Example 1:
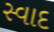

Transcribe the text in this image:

સ્વાદ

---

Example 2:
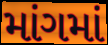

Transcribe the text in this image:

માંગમાં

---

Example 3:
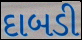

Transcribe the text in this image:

દાબડી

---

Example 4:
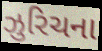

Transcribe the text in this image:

ઝુરિચના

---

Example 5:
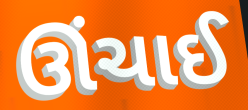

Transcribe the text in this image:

ઊંચાઈ